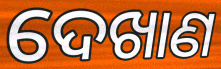
ଦେଖାଣ